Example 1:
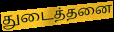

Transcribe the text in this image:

துடைத்தனை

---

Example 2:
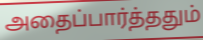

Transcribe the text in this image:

அதைப்பார்த்ததும்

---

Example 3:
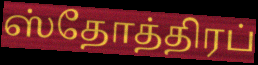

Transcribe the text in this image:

ஸ்தோத்திரப்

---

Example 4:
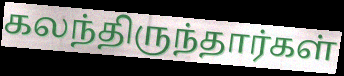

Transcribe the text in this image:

கலந்திருந்தார்கள்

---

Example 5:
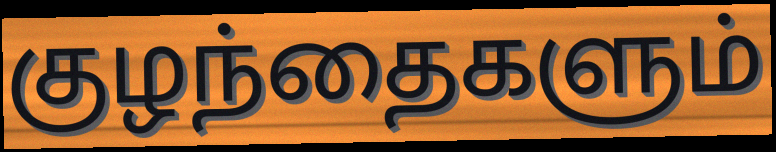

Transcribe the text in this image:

குழந்தைகளும்